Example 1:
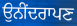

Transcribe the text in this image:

ਉਨੀਂਦਰਾਪਣ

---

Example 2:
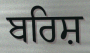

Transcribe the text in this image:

ਬਰਿਸ਼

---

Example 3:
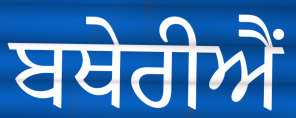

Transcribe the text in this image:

ਬਥੇਰੀਐਂ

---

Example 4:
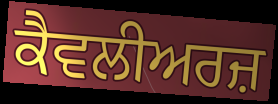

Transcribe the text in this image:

ਕੈਵਲੀਅਰਜ਼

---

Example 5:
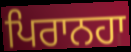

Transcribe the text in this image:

ਪਿਰਾਨਹਾ